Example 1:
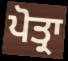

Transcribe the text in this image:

ਪੋਤ੍ਰਾ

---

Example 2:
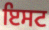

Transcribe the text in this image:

ਇਸਟ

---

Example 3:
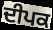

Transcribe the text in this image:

ਦੀਪਕ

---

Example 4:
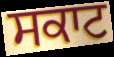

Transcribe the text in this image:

ਸਕਾਟ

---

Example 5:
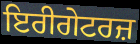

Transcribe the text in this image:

ਇਰੀਗੇਟਰਜ਼